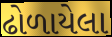
ઢોળાયેલા